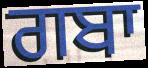
ਗਬਾ